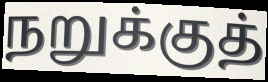
நறுக்குத்